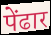
पेंढार